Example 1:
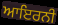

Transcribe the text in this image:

ਆਇਰਨੀ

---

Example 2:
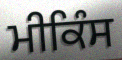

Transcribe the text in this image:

ਮੀਕਿੰਸ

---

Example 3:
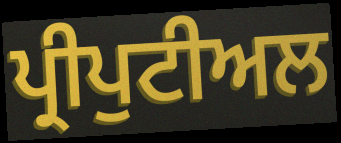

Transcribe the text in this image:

ਪ੍ਰੀਪੁਟੀਅਲ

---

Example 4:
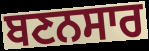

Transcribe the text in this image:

ਬਣਨਸਾਰ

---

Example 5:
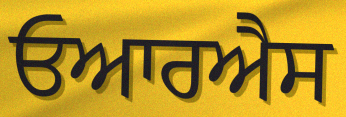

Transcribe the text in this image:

ਓਆਰਐਸ